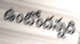
ఉంటోందన్నది